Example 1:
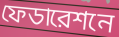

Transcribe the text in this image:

ফেডারেশনে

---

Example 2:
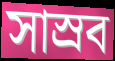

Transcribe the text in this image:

সাস্রব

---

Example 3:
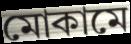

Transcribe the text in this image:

মোকামে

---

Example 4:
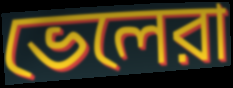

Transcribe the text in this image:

ভেলেরা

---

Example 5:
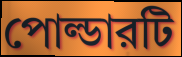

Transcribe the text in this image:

পোল্ডারটি